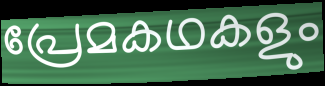
പ്രേമകഥകളും